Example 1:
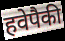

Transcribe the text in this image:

हवेपैकी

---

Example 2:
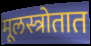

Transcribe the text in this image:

मूलस्त्रोतात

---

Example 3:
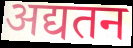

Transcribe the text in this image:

अद्यतन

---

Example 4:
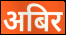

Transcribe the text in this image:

अबिर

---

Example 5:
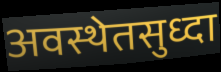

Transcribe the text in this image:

अवस्थेतसुध्दा